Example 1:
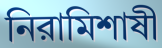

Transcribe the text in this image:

নিরামিশাষী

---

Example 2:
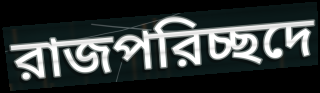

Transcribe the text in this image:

রাজপরিচ্ছদে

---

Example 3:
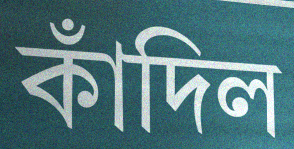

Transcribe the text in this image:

কাঁদিল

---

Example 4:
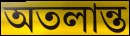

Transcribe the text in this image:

অতলান্ত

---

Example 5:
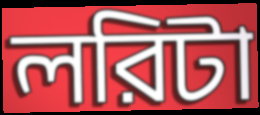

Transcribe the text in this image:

লরিটা